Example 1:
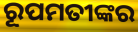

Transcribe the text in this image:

ରୂପମତୀଙ୍କର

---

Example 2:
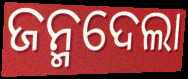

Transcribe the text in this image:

ଜନ୍ମଦେଲା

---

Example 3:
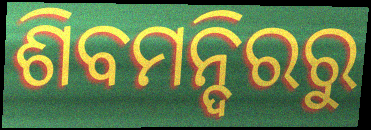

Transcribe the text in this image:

ଶିବମନ୍ଦିରରୁ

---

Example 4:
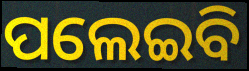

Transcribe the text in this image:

ପଲେଇବି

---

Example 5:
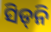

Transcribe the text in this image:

ସିଡ୍‍ନି